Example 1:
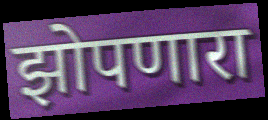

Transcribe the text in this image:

झोपणारा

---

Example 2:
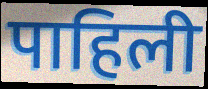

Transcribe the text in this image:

पाहिली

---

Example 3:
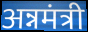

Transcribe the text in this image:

अन्नमंत्री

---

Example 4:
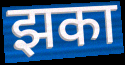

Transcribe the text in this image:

झका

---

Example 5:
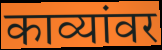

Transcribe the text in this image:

काव्यांवर